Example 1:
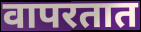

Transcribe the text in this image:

वापरतात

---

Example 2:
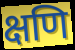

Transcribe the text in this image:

क्षणि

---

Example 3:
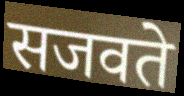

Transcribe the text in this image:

सजवते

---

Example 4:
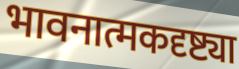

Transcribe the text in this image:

भावनात्मकदृष्ट्या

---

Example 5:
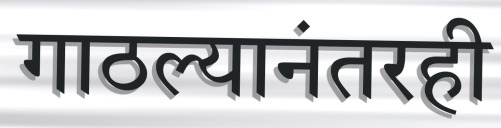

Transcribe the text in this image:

गाठल्यानंतरही